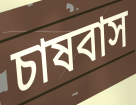
চাষবাস